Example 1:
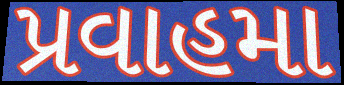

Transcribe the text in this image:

પ્રવાહમા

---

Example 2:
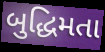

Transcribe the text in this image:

બુદ્ધિમતા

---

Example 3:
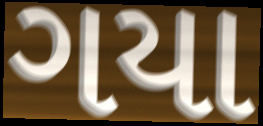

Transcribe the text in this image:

ગયા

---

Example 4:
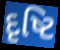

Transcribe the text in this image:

દૃષ્ટિ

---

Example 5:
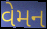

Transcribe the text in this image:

વેમન